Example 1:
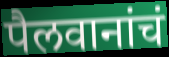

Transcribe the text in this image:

पैलवानांचं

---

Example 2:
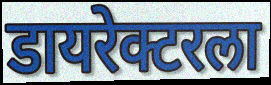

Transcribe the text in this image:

डायरेक्टरला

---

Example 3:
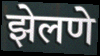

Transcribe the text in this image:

झेलणे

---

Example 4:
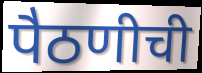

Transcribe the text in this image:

पैठणीची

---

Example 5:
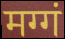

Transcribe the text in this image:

मग्गं